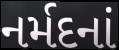
નર્મદનાં